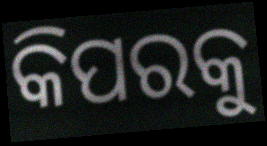
କିପରକୁ